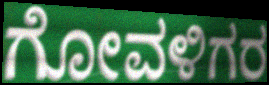
ಗೋವಳಿಗರ